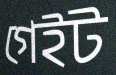
গেইট